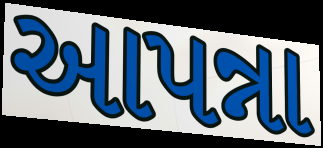
આપન્ના